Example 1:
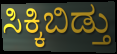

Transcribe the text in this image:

ಸಿಕ್ಕಿಬಿಡ್ತು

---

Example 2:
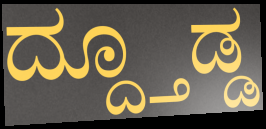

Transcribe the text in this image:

ದ್ದ್ತೂಡ್ಡ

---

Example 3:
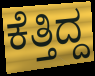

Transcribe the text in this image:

ಕೆತ್ತಿದ್ದ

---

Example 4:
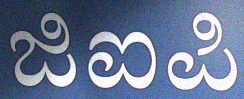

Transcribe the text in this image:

ಜಿಐಪಿ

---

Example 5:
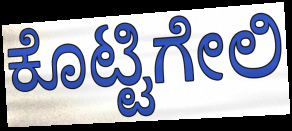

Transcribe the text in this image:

ಕೊಟ್ಟಿಗೇಲಿ